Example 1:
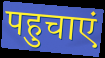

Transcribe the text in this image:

पहुचाएं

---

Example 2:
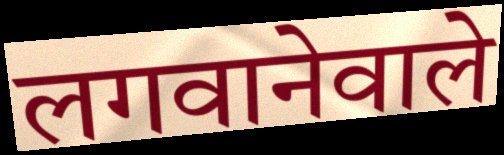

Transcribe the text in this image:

लगवानेवाले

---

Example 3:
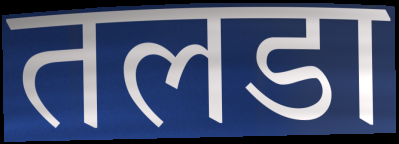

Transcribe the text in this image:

तलडा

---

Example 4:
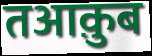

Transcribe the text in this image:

तआक़ुब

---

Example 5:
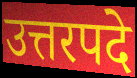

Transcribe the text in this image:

उत्तरपदे